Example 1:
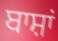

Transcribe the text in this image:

ਬਾਸ਼ਾਂ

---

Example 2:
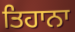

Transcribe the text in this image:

ਤਿਹਾਨਾ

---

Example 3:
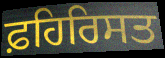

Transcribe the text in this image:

ਫ਼ਹਿਰਿਸਤ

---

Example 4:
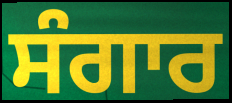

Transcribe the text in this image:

ਸੰਗਾਰ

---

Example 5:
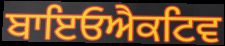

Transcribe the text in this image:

ਬਾਇਓਐਕਟਿਵ